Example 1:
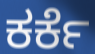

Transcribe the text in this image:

ಕರ್ಕೆ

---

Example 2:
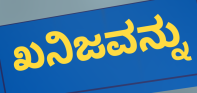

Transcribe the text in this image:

ಖನಿಜವನ್ನು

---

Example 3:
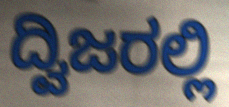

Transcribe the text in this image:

ದ್ವಿಜರಲ್ಲಿ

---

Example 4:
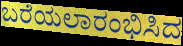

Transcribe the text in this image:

ಬರೆಯಲಾರಂಭಿಸಿದ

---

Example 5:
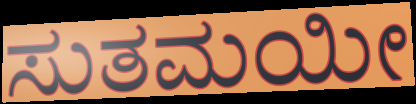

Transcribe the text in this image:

ಸುತಮಯೀ